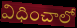
విధించాలో